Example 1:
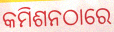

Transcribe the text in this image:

କମିଶନଠାରେ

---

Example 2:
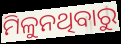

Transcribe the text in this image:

ମିଳୁନଥିବାରୁ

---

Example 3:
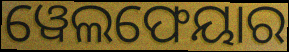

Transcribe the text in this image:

ୱେଲଫେୟାର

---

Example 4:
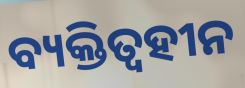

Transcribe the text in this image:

ବ୍ୟକ୍ତିତ୍ୱହୀନ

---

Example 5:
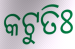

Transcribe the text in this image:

କଟୁତିଃ